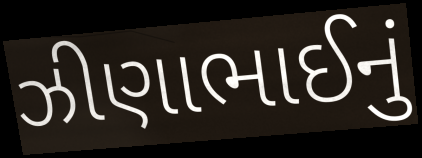
ઝીણાભાઈનું